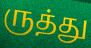
ருத்து